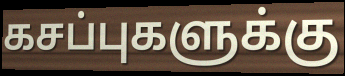
கசப்புகளுக்கு